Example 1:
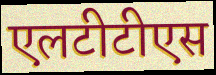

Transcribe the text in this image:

एलटीटीएस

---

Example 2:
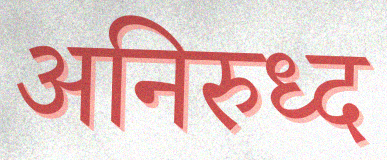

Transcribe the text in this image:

अनिरुध्द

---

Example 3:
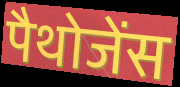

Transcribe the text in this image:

पैथोजेंस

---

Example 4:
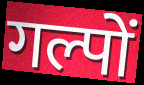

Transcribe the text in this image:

गल्पों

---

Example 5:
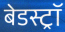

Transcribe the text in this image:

बेडस्ट्रॉ